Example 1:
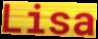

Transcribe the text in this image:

Lisa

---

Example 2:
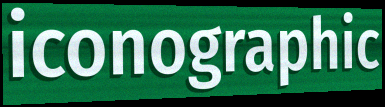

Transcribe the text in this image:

iconographic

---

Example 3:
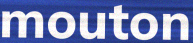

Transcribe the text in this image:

mouton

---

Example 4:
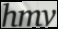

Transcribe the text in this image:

hmv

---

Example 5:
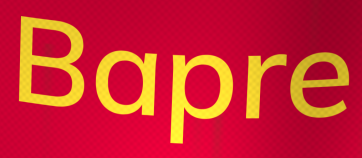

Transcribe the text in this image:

Bapre